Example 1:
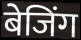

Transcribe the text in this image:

बेजिंग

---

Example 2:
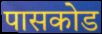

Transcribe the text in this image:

पासकोड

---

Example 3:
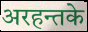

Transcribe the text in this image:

अरहन्तके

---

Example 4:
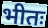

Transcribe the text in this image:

भीतः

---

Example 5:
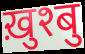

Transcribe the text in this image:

ख़ुश्बु